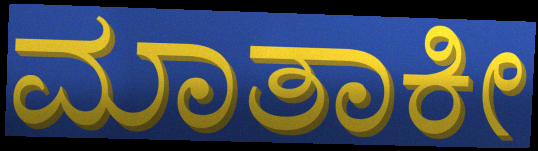
ಮಾತಾಕೀ